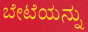
ಬೇಟೆಯನ್ನು